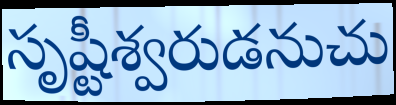
సృష్టీశ్వరుడనుచు